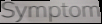
Symptom